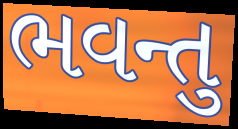
ભવન્તુ